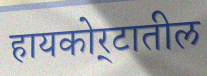
हायकोर्टातील